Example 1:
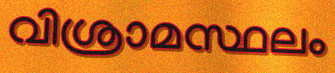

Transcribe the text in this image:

വിശ്രാമസ്ഥലം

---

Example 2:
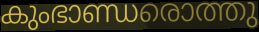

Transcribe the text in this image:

കുംഭാണ്ഡരൊത്തു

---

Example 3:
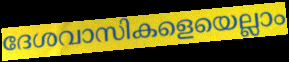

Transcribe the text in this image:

ദേശവാസികളെയെല്ലാം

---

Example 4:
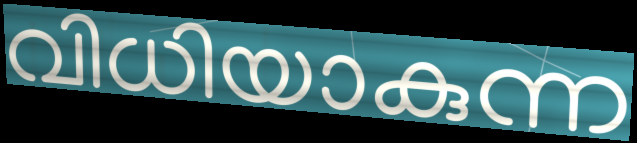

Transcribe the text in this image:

വിധിയാകുന്ന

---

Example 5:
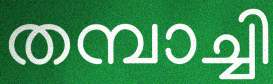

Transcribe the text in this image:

തമ്പാച്ചി